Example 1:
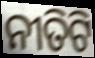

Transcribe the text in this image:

ନୀତିଟି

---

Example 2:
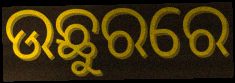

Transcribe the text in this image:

ଉଛୁରରେ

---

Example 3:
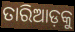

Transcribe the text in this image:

ତାରିଆଡ଼କୁ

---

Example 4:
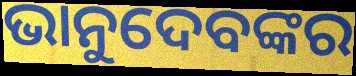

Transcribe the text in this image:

ଭାନୁଦେବଙ୍କର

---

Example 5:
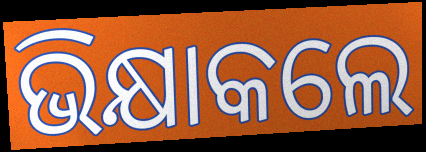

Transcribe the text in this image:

ଭିକ୍ଷାକଲେ